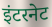
इंटरनेट